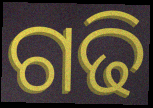
ଗଢି